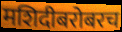
मशिदीबरोबरच